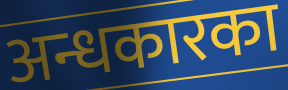
अन्धकारका